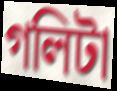
গলিটা